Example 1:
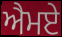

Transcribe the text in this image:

ਐਮਏ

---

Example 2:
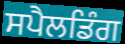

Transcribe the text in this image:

ਸਪੈਲਡਿੰਗ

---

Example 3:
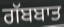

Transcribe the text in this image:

ਗੱਬਬਾਤ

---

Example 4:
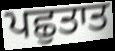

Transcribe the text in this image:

ਪਛੁਤਾਤ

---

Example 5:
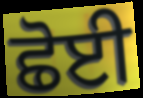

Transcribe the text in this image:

ਛੋਈ